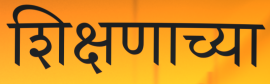
शिक्षणाच्या